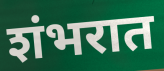
शंभरात